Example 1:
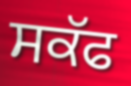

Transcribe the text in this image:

ਸਕੱਫ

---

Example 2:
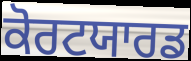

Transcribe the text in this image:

ਕੋਰਟਯਾਰਡ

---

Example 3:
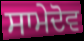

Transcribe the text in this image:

ਸਾਮੇਦੋਵ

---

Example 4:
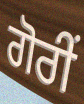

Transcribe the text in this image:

ਗੋਰੀਂ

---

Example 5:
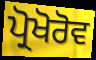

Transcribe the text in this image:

ਪ੍ਰੋਖੋਰੋਵ